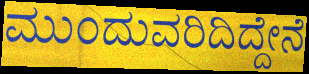
ಮುಂದುವರಿದಿದ್ದೇನೆ